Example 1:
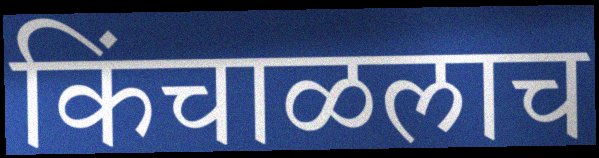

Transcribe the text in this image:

किंचाळलाच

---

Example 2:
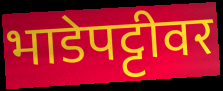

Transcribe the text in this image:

भाडेपट्टीवर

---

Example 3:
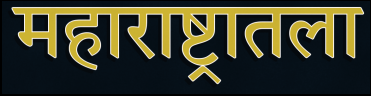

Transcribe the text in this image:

महाराष्ट्रातला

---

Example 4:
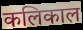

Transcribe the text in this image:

कलिकाल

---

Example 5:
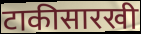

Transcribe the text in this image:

टाकीसारखी